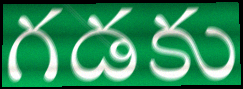
గడకు